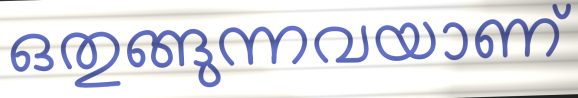
ഒതുങ്ങുന്നവയാണ്